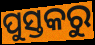
ପୁସ୍ତକରୁ